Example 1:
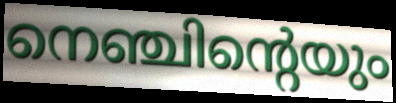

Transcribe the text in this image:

നെഞ്ചിന്റെയും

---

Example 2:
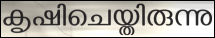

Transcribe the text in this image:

കൃഷിചെയ്തിരുന്നു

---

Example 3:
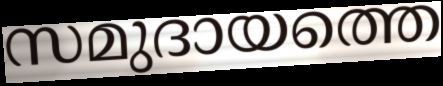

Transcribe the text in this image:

സമുദായത്തെ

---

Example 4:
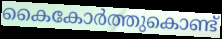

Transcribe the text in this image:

കൈകോർത്തുകൊണ്ട്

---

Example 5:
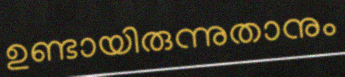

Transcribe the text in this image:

ഉണ്ടായിരുന്നുതാനും